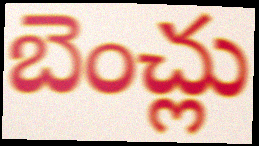
బెంచ్లు